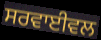
ਸਰਵਾਈਵਲ